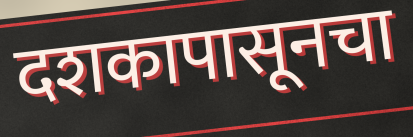
दशकापासूनचा